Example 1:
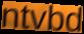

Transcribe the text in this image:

ntvbd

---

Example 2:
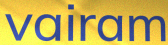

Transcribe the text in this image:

vairam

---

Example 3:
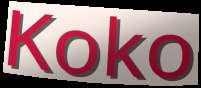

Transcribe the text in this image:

Koko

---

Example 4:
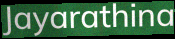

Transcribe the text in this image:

Jayarathina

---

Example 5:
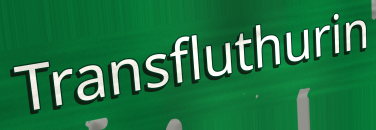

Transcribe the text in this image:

Transfluthurin